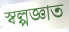
স্বল্পজ্ঞাত